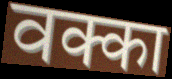
वक्का